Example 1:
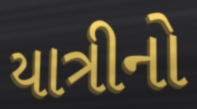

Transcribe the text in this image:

યાત્રીનો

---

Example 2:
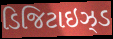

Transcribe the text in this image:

ડિજિટાઇઝ્ડ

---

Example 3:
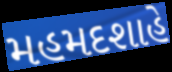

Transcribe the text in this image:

મહમદશાહે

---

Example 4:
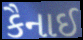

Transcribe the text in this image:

કૈનાઈ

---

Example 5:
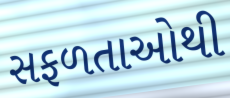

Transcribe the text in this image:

સફળતાઓથી